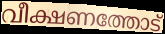
വീക്ഷണത്തോട്